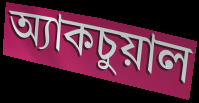
অ্যাকচুয়াল